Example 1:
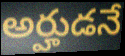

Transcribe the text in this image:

అర్హుడనే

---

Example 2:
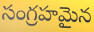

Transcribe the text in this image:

సంగ్రహమైన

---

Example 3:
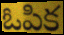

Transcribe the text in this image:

ఓపిక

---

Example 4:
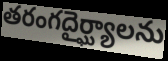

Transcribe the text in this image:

తరంగదైర్ఘ్యాలను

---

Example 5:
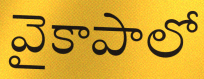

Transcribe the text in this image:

వైకాపాలో